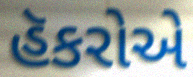
હૅકરોએ